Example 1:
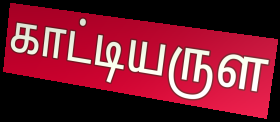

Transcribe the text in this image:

காட்டியருள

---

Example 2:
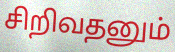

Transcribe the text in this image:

சிறிவதனும்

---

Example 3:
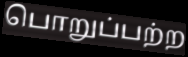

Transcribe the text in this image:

பொறுப்பற்ற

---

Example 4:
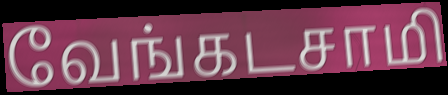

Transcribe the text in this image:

வேங்கடசாமி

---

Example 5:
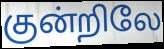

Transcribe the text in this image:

குன்றிலே